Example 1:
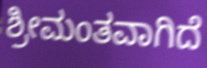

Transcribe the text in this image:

ಶ್ರೀಮಂತವಾಗಿದೆ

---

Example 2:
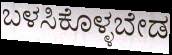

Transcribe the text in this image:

ಬಳಸಿಕೊಳ್ಳಬೇಡ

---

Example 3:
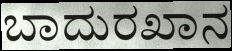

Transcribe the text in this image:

ಬಾದುರಖಾನ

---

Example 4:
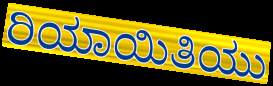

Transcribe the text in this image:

ರಿಯಾಯಿತಿಯು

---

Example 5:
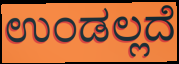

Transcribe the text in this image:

ಉಂಡಲ್ಲದೆ